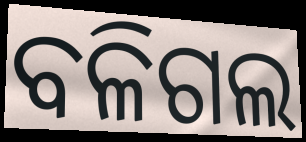
ବଳିଗଲ